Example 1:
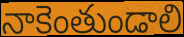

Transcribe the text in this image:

నాకెంతుండాలి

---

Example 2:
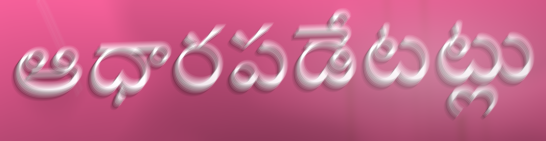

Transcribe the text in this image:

ఆధారపడేటట్లు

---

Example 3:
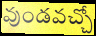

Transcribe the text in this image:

వుండవచ్చో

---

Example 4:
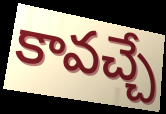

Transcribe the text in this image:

కావచ్చే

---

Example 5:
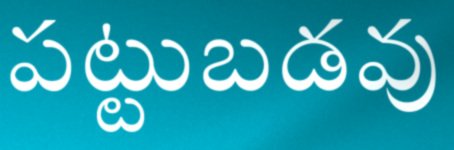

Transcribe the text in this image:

పట్టుబడవు